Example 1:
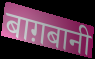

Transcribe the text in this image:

बाग़बानी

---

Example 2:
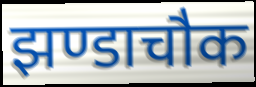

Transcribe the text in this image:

झण्डाचौक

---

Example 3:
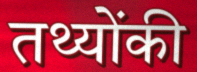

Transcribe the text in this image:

तथ्योंकी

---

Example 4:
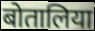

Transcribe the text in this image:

बोतालिया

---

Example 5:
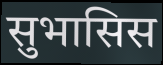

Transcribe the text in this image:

सुभासिस